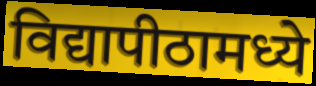
विद्यापीठामध्ये